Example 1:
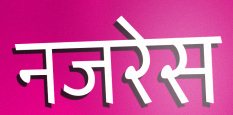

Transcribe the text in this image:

नजरेस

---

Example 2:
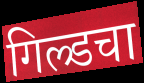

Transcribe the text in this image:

गिल्डचा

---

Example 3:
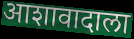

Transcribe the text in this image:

आशावादाला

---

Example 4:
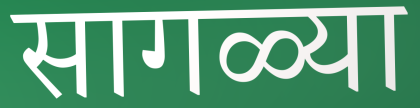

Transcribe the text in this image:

सागळ्या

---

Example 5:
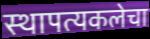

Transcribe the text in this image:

स्थापत्यकलेचा